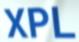
XPL